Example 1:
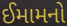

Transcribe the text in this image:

ઈમામનો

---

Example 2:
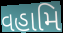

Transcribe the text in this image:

વહામિ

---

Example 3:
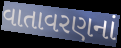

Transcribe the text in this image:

વાતાવરણનાં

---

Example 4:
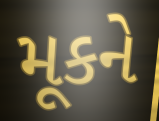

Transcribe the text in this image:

મૂકને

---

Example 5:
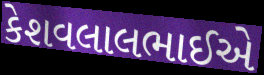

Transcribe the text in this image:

કેશવલાલભાઈએ